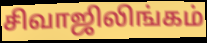
சிவாஜிலிங்கம்